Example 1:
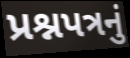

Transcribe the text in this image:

પ્રશ્નપત્રનું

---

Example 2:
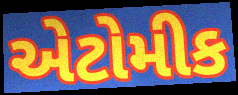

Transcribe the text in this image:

એટોમીક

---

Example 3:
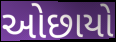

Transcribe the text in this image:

ઓછાયો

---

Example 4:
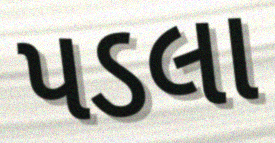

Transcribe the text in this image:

પડલા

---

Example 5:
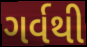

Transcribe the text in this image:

ગર્વથી